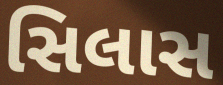
સિલાસ